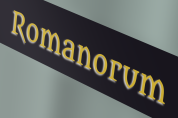
Romanorum